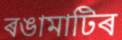
ৰঙামাটিৰ